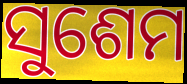
ସୁଶେମ